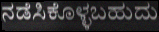
ನಡೆಸಿಕೊಳ್ಳಬಹುದು